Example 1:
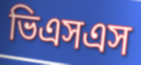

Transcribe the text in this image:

ভিএসএস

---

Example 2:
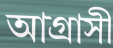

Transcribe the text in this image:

আগ্রাসী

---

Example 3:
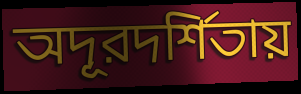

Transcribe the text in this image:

অদূরদর্শিতায়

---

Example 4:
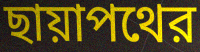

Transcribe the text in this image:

ছায়াপথের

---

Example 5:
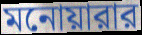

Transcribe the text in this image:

মনোয়ারার